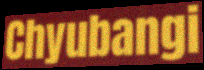
Chyubangi